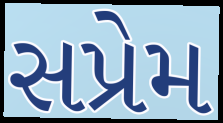
સપ્રેમ